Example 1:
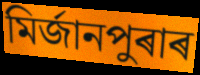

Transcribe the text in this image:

মিৰ্জানপুৰাৰ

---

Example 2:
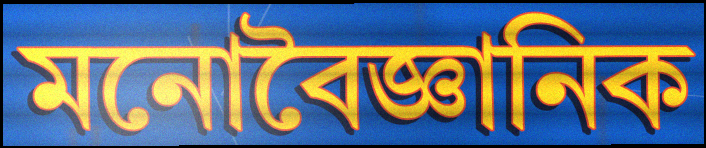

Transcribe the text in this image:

মনোবৈজ্ঞানিক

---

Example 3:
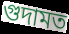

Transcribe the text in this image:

গুদামত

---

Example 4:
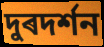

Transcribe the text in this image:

দুৰদৰ্শন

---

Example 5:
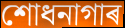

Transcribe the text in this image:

শোধনাগাৰ